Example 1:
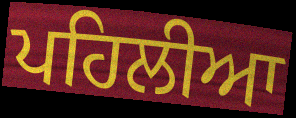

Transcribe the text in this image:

ਪਹਿਲੀਆ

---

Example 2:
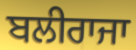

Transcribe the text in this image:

ਬਲੀਰਾਜਾ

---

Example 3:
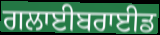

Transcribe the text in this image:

ਗਲਾਈਬਰਾਈਡ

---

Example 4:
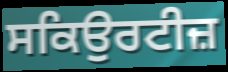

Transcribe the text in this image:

ਸਕਿਉਰਟੀਜ਼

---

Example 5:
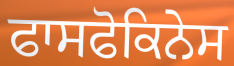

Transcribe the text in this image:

ਫਾਸਫੋਕਿਨੇਸ